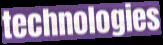
technologies